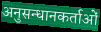
अनुसन्धानकर्ताओं